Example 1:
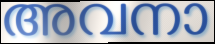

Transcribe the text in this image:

അവനാ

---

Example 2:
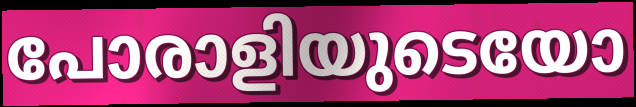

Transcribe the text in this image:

പോരാളിയുടെയോ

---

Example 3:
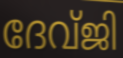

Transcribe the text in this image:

ദേവ്ജി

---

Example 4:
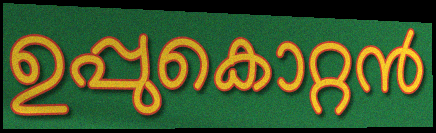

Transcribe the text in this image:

ഉപ്പുകൊറ്റൻ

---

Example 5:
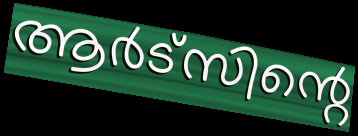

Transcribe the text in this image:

ആർട്സിന്റെ